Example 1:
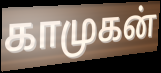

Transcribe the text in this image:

காமுகன்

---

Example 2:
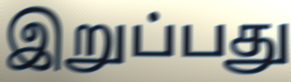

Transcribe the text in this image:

இறுப்பது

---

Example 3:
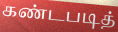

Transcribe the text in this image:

கண்டபடித்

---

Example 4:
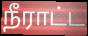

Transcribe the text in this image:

நீராட்ட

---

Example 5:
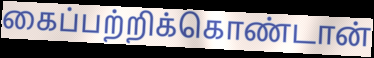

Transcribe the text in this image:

கைப்பற்றிக்கொண்டான்